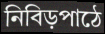
নিবিড়পাঠে